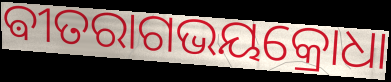
ଵୀତରାଗଭୟକ୍ରୋଧା